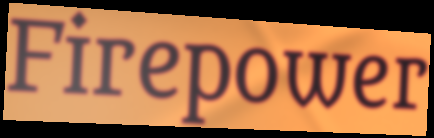
Firepower